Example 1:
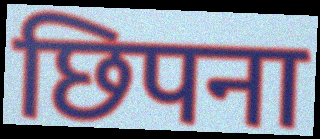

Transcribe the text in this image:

छिपना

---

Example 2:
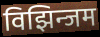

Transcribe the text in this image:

विझिन्जम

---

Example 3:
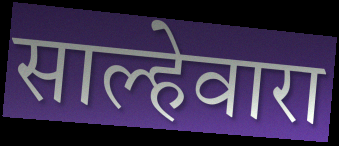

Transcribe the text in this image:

साल्हेवारा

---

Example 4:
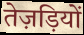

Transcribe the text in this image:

तेज़ड़ियों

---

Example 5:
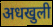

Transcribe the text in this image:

अधखुली